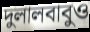
দুলালবাবুও